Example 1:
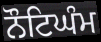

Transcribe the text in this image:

ਨੌਟਿਘੰਮ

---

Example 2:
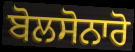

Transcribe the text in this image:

ਬੋਲਸੋਨਾਰੋ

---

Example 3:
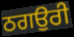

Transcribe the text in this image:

ਠਗਉਰੀ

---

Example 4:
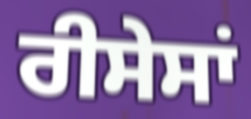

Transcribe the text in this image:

ਰੀਸੇਸਾਂ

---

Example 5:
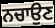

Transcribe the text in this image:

ਨਚਾਉਣ